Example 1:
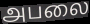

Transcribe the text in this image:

அபலை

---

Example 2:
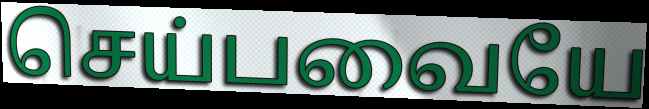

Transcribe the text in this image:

செய்பவையே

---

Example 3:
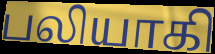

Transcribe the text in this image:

பலியாகி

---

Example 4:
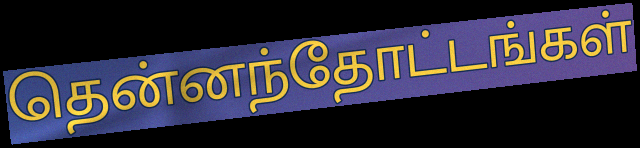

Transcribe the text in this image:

தென்னந்தோட்டங்கள்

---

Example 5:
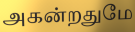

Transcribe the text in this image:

அகன்றதுமே